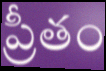
ప్రీతం